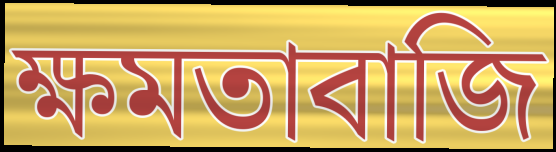
ক্ষমতাবাজি